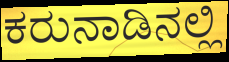
ಕರುನಾಡಿನಲ್ಲಿ